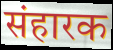
संहारक